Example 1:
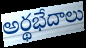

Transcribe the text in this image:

అర్థభేదాలు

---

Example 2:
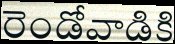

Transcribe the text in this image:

రెండోవాడికి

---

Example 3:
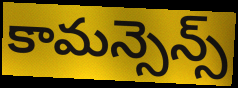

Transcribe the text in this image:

కామన్సెన్స్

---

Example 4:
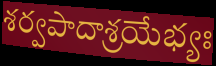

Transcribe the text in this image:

శర్వపాదాశ్రయేభ్యః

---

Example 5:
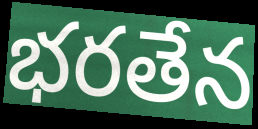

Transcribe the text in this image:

భరతేన